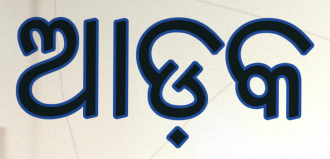
ଆଡ଼କ